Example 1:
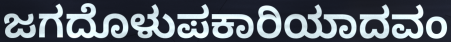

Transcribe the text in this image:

ಜಗದೊಳುಪಕಾರಿಯಾದವಂ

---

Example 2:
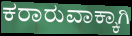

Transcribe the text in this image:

ಕರಾರುವಾಕ್ಕಾಗಿ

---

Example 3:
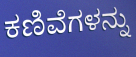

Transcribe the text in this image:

ಕಣಿವೆಗಳನ್ನು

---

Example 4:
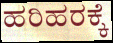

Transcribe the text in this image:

ಹರಿಹರಕ್ಕೆ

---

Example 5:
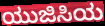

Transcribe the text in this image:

ಯುಜಿಸಿಯ